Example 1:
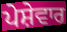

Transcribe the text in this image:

ਪੇਸ਼ੇਵਾਰ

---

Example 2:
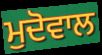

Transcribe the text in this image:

ਮੁਦੋਵਾਲ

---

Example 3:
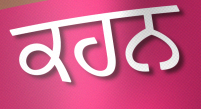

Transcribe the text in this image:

ਕਹਨ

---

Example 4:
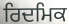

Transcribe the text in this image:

ਰਿਦਮਿਕ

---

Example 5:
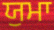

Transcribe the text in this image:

ਯੁਮਾ